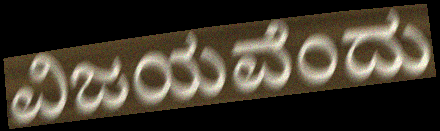
ವಿಜಯವೆಂದು